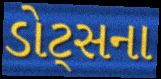
ડોટ્સના